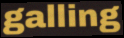
galling